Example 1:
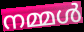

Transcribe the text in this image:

നമ്മൾ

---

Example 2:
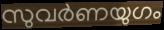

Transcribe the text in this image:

സുവർണയുഗം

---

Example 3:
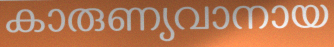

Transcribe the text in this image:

കാരുണ്യവാനായ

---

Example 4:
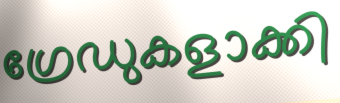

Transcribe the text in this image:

ഗ്രേഡുകളാക്കി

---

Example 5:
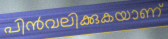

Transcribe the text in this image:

പിൻവലിക്കുകയാണ്